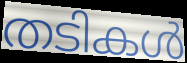
തടികൾ